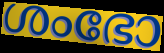
ശംഭോ